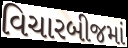
વિચારબીજમાં